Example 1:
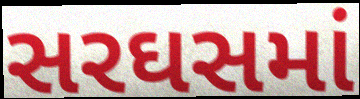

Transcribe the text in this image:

સરઘસમાં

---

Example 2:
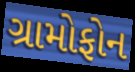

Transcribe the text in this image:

ગ્રામોફોન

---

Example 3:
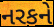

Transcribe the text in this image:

નરકને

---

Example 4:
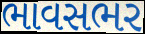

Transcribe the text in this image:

ભાવસભર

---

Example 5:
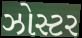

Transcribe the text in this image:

ઝોસ્ટર